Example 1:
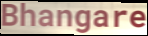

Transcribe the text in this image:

Bhangare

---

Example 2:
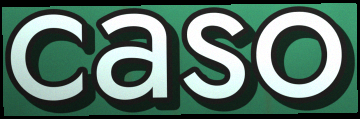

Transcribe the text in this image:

caso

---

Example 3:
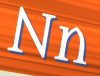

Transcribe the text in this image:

Nn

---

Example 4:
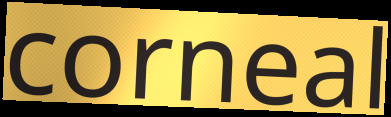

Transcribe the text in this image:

corneal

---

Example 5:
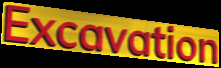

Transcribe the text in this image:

Excavation